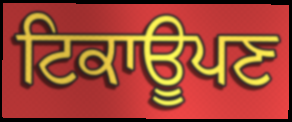
ਟਿਕਾਊਪਣ